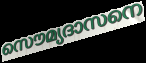
സൌമ്യദാസനെ